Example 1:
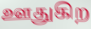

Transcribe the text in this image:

ஊதுகிற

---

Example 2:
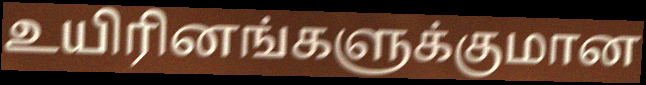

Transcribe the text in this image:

உயிரினங்களுக்குமான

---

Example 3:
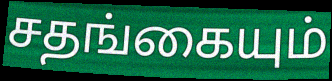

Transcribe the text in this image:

சதங்கையும்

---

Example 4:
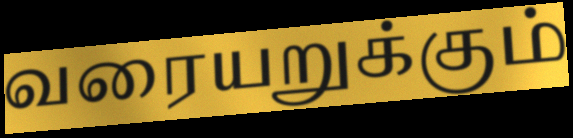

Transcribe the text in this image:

வரையறுக்கும்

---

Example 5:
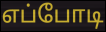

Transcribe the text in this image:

எப்போடி